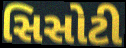
સિસોટી